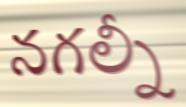
నగల్నీ